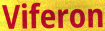
Viferon